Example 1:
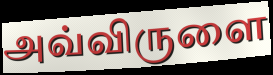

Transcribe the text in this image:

அவ்விருளை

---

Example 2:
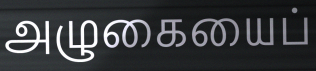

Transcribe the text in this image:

அழுகையைப்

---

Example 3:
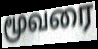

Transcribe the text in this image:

மூவரை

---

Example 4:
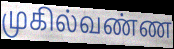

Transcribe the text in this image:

முகில்வண்ண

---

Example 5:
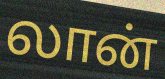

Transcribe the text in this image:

லான்